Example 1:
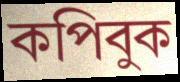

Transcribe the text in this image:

কপিবুক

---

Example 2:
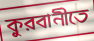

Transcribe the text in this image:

কুরবানীতে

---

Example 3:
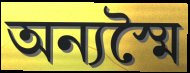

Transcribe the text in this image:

অন্যস্মৈ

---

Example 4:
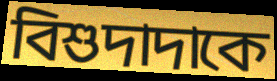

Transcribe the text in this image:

বিশুদাদাকে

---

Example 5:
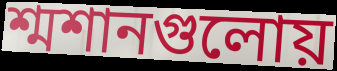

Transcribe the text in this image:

শ্মশানগুলোয়